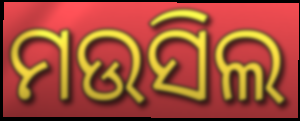
ମଉସିଲ